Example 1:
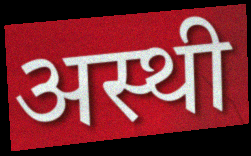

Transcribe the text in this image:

अस्थी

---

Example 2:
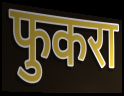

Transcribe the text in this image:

फुकरा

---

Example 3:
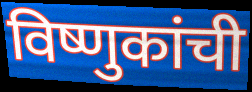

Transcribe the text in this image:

विष्णुकांची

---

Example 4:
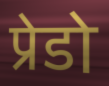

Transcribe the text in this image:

प्रेडो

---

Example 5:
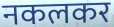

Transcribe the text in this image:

नकलकर